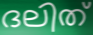
ദലിത്